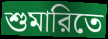
শুমারিতে